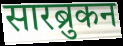
सारब्रुकन